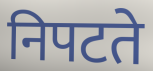
निपटते